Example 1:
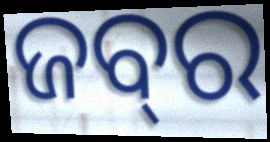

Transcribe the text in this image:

ଜବ୍‍ର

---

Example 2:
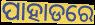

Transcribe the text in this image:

ପାହାଡରେ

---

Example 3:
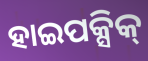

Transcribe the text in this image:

ହାଇପକ୍ସିକ୍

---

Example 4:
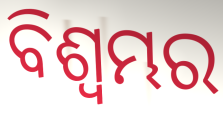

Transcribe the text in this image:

ବିଶ୍ବମ୍ଭର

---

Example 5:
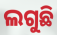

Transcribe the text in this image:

ଲଗୁଛି